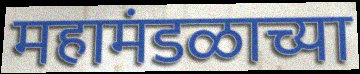
महामंडळाच्या